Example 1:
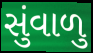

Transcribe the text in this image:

સુંવાળુ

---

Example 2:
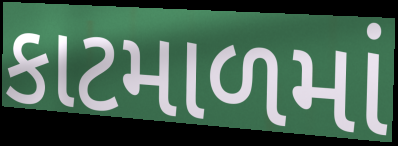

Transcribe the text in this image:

કાટમાળમાં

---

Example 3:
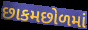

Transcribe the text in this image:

છાકમછોળમાં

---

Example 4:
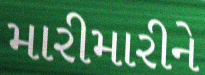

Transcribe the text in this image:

મારીમારીને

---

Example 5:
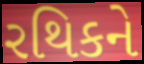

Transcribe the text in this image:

રથિકને